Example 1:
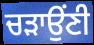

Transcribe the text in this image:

ਚੜਾਉਂਣੀ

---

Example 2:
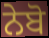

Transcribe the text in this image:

ਨੇਬੋ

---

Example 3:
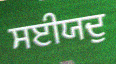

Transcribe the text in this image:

ਸਈਯਦੁ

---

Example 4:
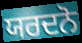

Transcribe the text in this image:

ਯਰਦਨੋ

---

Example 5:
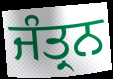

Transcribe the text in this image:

ਜੰਤ੍ਰਨ